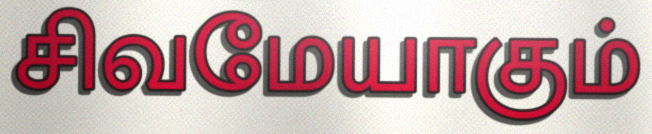
சிவமேயாகும்